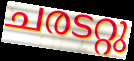
ചരടറ്റു